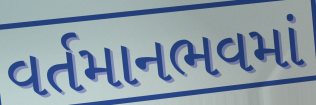
વર્તમાનભવમાં